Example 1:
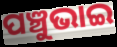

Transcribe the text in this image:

ପଞ୍ଚୁଭାଇ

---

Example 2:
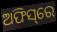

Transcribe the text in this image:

ଅଫିସ୍‌ରେ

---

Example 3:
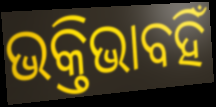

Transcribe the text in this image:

ଭକ୍ତିଭାବହିଁ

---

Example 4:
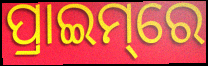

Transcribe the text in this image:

ପ୍ରାଇମ୍‌ରେ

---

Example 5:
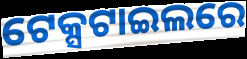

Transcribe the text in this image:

ଟେକ୍ସଟାଇଲରେ